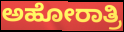
ಅಹೋರಾತ್ರಿ